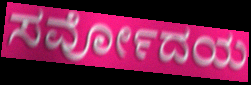
ಸರ್ವೋದಯ